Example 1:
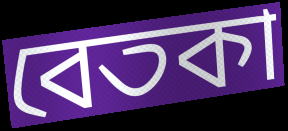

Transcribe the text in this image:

বেতকা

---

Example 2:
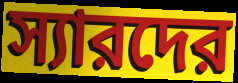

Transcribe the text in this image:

স্যারদের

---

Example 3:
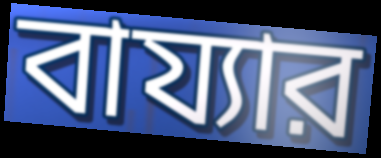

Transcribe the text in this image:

বায্যার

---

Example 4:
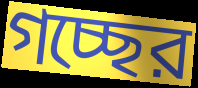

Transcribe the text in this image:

গচ্ছের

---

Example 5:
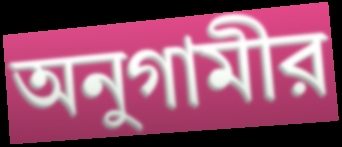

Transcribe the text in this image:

অনুগামীর